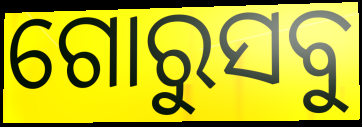
ଗୋରୁସବୁ